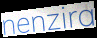
nenzira